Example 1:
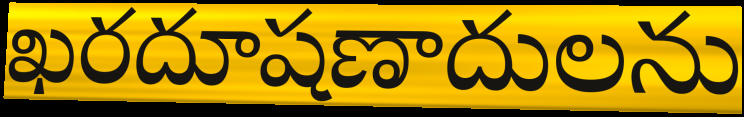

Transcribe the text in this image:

ఖరదూషణాదులను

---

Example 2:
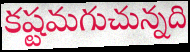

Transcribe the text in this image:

కష్టమగుచున్నది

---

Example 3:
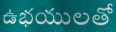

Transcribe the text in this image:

ఉభయులతో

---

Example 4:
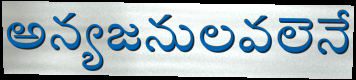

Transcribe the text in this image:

అన్యజనులవలెనే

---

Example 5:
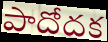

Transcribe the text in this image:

పాదోదక